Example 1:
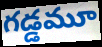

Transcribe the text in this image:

గడ్డమూ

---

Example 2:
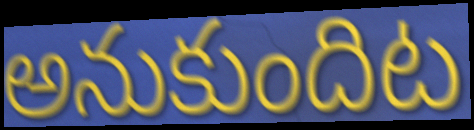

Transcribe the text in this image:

అనుకుందిట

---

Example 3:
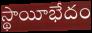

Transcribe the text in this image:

స్థాయీభేదం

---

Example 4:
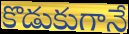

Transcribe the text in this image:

కొడుకుగానే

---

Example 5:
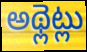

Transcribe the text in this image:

అథ్లెట్లు